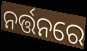
ନର୍ତ୍ତନରେ